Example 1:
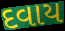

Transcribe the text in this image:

દવાય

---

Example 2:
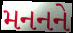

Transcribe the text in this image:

મનનને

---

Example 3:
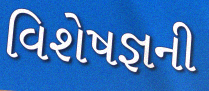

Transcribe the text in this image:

વિશેષજ્ઞની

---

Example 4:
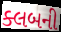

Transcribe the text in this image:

ક્લબની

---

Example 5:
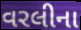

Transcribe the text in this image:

વરલીના